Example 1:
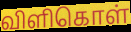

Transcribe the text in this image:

விளிகொள்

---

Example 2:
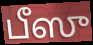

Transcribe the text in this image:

பீஸு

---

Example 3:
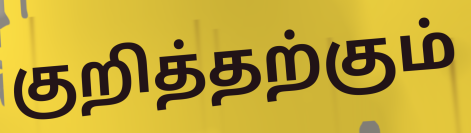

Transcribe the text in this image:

குறித்தற்கும்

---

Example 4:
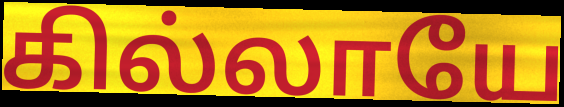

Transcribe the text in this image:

கில்லாயே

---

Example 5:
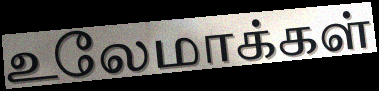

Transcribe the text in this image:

உலேமாக்கள்